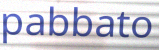
pabbato